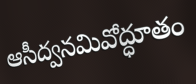
ఆసీద్వనమివోద్ధూతం